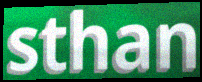
sthan